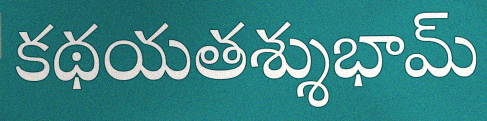
కథయతశ్శుభామ్